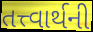
તત્ત્વાર્થની